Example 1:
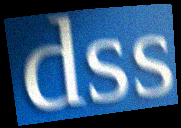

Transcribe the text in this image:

dss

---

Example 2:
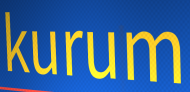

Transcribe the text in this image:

kurum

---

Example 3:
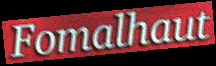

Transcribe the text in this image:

Fomalhaut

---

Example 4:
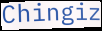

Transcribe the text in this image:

Chingiz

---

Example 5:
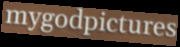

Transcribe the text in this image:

mygodpictures